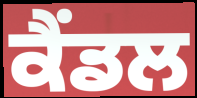
ਕੈਂਡਲ